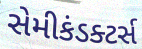
સેમીકંડક્ટર્સ